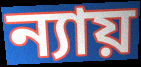
ন্যায়